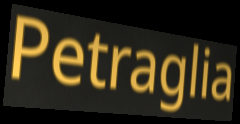
Petraglia